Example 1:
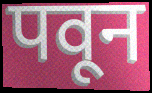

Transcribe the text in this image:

पवून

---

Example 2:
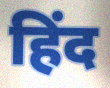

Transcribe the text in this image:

हिंद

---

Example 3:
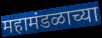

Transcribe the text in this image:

महामंडळाच्या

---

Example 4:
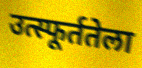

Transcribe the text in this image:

उत्स्फूर्ततेला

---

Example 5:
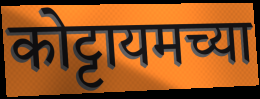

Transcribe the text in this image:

कोट्टायमच्या